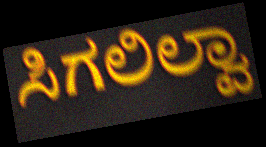
ಸಿಗಲಿಲ್ವಾ